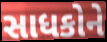
સાધકોને